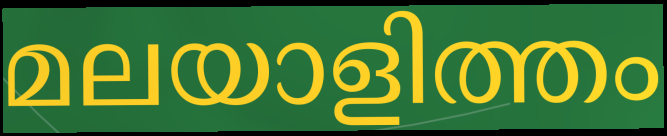
മലയാളിത്തം